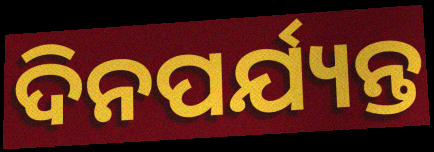
ଦିନପର୍ଯ୍ୟନ୍ତ